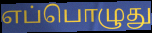
எப்பொழுது